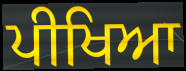
ਪੀਖਿਆ